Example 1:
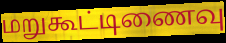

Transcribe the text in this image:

மறுகூட்டிணைவு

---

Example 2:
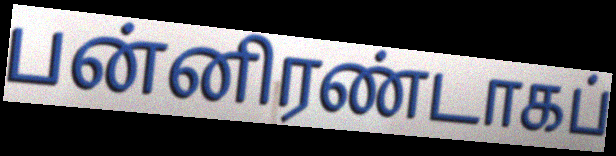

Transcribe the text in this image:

பன்னிரண்டாகப்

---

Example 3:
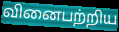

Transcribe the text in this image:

வினைபற்றிய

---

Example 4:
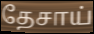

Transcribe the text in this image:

தேசாய்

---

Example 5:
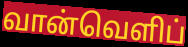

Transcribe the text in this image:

வான்வெளிப்